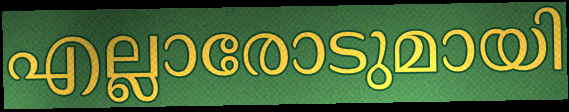
എല്ലാരോടുമായി